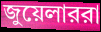
জুয়েলাররা